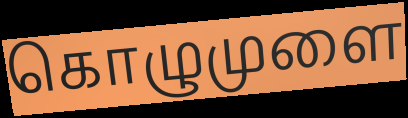
கொழுமுளை